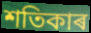
শতিকাৰ